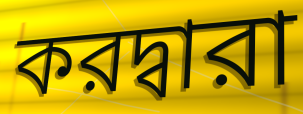
করদ্বারা